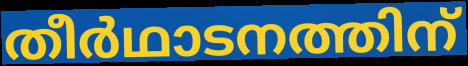
തീർഥാടനത്തിന്